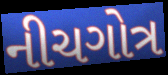
નીચગોત્ર